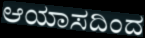
ಆಯಾಸದಿಂದ